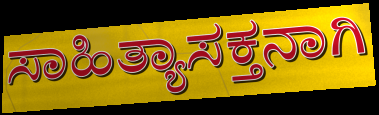
ಸಾಹಿತ್ಯಾಸಕ್ತನಾಗಿ